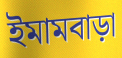
ইমামবাড়া